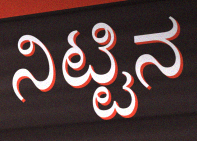
ನಿಟ್ಟಿನ